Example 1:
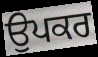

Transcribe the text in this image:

ਉਪਕਰ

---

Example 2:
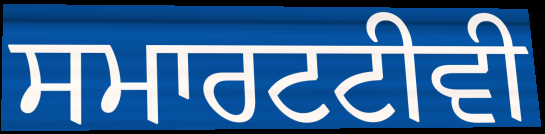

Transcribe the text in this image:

ਸਮਾਰਟਟੀਵੀ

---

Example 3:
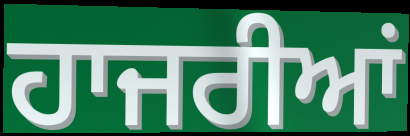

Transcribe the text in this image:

ਹਾਜਰੀਆਂ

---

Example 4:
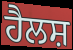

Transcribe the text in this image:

ਹੈਲਸ਼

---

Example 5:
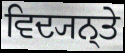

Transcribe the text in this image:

ਵਿਦ੍ਯਨ੍ਤੇ